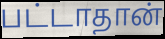
பட்டாதான்